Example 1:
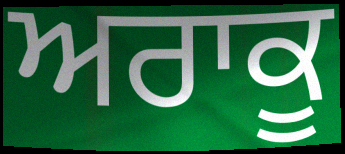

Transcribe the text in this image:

ਅਰਾਕੂ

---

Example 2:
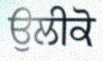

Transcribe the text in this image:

ਉਲੀਕੋ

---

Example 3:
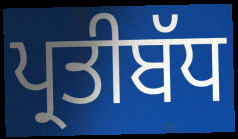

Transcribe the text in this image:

ਪ੍ਰਤੀਬੱਧ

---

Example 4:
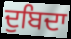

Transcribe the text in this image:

ਦੁਬਿਦਾ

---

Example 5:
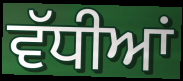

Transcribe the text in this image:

ਵੱਧੀਆਂ